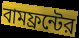
বামফ্রন্টের